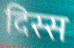
दिस्स